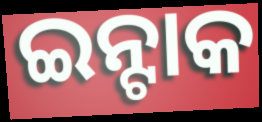
ଇନ୍ଟାକ